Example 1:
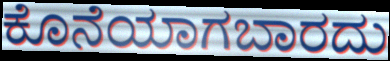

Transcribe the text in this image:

ಕೊನೆಯಾಗಬಾರದು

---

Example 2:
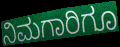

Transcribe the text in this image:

ನಿಮಗಾರಿಗೂ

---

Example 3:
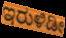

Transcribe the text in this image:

ಇರುಳಿಡೀ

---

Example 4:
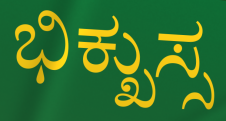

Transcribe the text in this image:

ಭಿಕ್ಖುಸ್ಸ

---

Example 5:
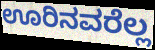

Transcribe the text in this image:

ಊರಿನವರೆಲ್ಲ